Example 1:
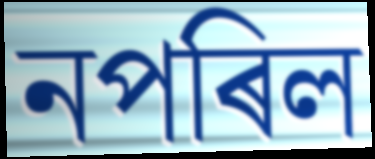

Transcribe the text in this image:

নপৰিল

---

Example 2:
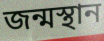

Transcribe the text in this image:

জন্মস্থান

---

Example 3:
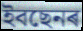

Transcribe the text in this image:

ইবছেনৰ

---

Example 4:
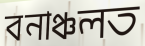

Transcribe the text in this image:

বনাঞ্চলত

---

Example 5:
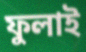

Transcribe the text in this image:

ফুলাই